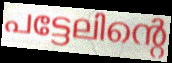
പട്ടേലിന്റെ